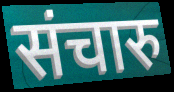
संचारु